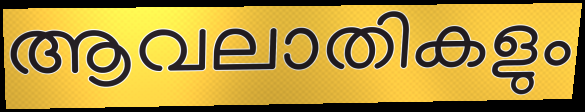
ആവലാതികളും